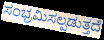
ಸಂಭ್ರಮಿಸಲ್ಪಡುತ್ತದೆ